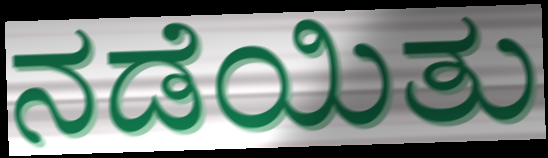
ನಡೆಯಿತು